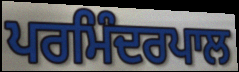
ਪਰਮਿੰਦਰਪਾਲ